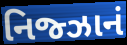
નિજ્ઝાનં